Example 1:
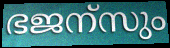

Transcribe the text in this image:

ഭജന്സും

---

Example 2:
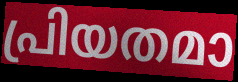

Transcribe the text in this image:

പ്രിയതമാ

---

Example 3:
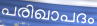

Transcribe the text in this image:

പരിഖാപദം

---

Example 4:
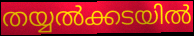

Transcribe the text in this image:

തയ്യൽക്കടയിൽ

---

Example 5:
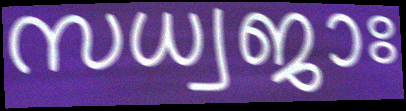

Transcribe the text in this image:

സധ്വജാഃ